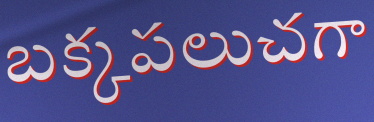
బక్కపలుచగా